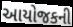
આયોજકની